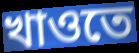
খাওতে